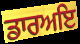
ਡਾਰਅਇ